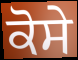
ਕੋਸੇ